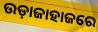
ଉଡ଼ାଜାହାଜରେ